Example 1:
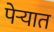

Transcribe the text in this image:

पेऱ्यात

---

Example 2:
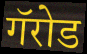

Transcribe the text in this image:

गॅरोड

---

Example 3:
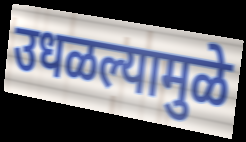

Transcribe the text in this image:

उधळल्यामुळे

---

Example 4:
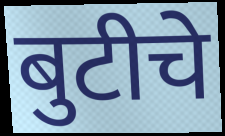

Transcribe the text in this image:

बुटीचे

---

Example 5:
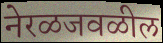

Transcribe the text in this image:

नेरळजवळील